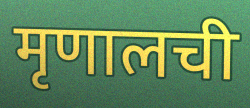
मृणालची